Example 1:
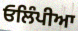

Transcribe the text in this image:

ਓਲਿੰਪੀਆ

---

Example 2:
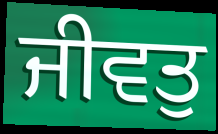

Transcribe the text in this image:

ਜੀਵਤੁ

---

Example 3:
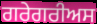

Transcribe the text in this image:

ਗਰੇਗਰੀਅਸ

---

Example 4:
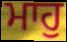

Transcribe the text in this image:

ਮਾਹੁ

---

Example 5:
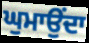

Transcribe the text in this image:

ਘੁਮਾਉਂਦਾ